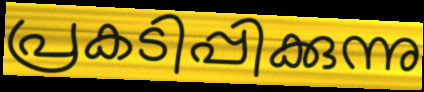
പ്രകടിപ്പിക്കുന്നു